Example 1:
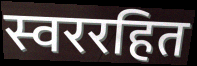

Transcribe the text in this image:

स्वररहित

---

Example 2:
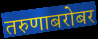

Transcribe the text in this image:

तरुणाबरोबर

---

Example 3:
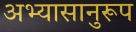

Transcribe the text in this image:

अभ्यासानुरूप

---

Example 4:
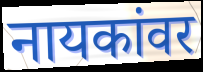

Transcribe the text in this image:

नायकांवर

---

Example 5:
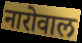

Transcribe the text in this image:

नारोवाल